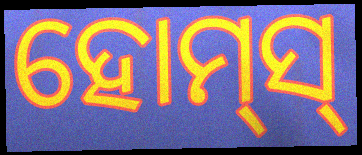
ହୋମ୍‌ସ୍